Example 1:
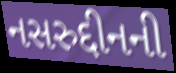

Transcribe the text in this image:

નસરુદ્દીનની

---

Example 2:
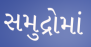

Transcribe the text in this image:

સમુદ્રોમાં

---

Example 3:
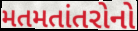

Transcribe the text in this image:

મતમતાંતરોનો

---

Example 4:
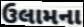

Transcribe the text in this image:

ઉલામના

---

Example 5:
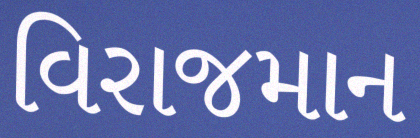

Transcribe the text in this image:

વિરાજમાન